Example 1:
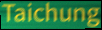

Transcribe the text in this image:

Taichung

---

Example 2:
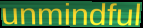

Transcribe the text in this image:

unmindful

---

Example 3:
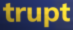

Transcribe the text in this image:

trupt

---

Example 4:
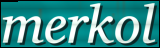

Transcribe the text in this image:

merkol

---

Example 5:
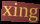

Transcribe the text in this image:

xing